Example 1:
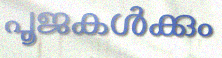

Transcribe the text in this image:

പൂജകൾക്കും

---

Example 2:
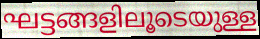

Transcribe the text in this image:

ഘട്ടങ്ങളിലൂടെയുള്ള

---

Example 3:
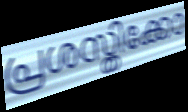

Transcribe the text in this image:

പ്രശസ്തിക്കോ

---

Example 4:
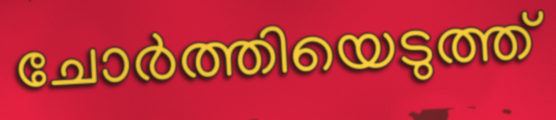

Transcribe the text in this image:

ചോർത്തിയെടുത്ത്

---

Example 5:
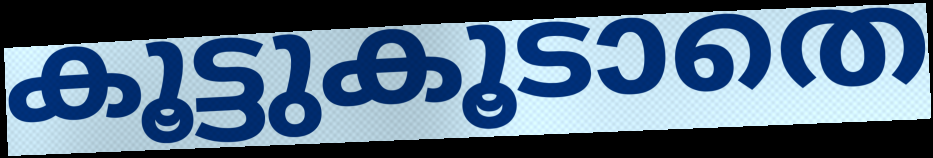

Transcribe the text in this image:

കൂട്ടുകൂടാതെ